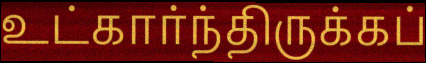
உட்கார்ந்திருக்கப்